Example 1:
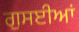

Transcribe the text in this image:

ਗੁਸਈਆਂ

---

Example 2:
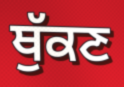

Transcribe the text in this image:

ਥੁੱਕਣ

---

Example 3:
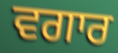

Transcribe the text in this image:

ਵਗਾਰ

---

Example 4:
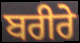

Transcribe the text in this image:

ਬਰੀਰੇ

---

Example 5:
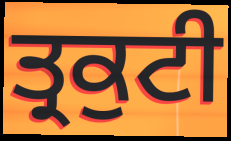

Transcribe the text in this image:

ਤ੍ਰਕੁਟੀ